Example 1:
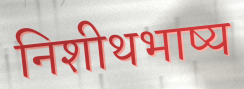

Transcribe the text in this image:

निशीथभाष्य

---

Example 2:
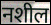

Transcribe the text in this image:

नशील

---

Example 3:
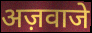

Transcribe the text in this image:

अज़वाजे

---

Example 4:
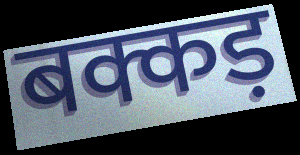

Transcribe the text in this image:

बक्कड़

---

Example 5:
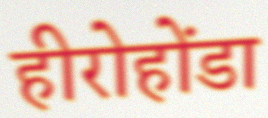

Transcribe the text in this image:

हीरोहोंडा